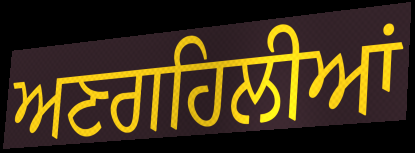
ਅਣਗਹਿਲੀਆਂ